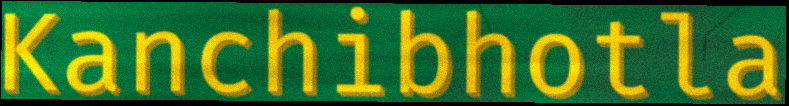
Kanchibhotla